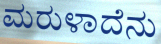
ಮರುಳಾದೆನು